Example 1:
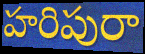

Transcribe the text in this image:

హరిపురా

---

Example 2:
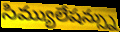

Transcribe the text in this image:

సిమ్యులేషన్స్ను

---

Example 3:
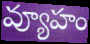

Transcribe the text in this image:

వ్యూహం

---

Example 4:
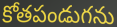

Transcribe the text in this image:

కోతపండుగను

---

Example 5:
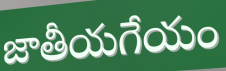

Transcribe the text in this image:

జాతీయగేయం